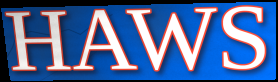
HAWS